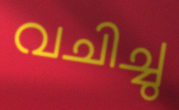
വചിച്ചു